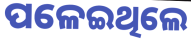
ପଳେଇଥିଲେ